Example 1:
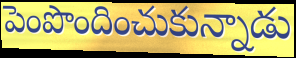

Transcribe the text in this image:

పెంపొందించుకున్నాడు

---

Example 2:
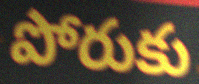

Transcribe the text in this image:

పోరుకు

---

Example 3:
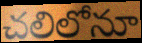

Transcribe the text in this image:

చలిలోనూ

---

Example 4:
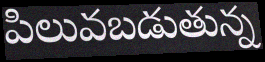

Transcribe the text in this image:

పిలువబడుతున్న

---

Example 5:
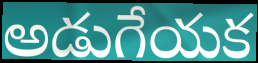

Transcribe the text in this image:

అడుగేయక